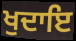
ਖੁਦਾਇ